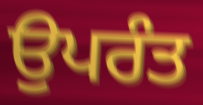
ਉਪਰੰਤ